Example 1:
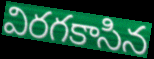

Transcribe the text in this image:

విరగకాసిన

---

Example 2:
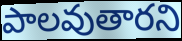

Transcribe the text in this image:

పాలవుతారని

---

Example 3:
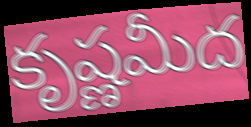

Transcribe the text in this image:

కృష్ణమీద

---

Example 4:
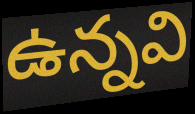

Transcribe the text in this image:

ఉన్నవి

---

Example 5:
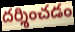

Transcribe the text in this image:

దర్శించడం